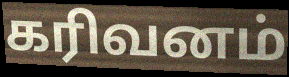
கரிவனம்